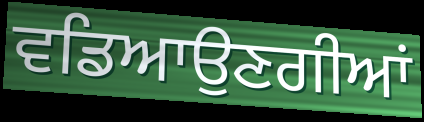
ਵਡਿਆਉਣਗੀਆਂ